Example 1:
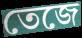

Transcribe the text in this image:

তেজে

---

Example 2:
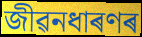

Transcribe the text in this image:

জীৱনধাৰণৰ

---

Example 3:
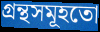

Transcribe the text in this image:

গ্ৰন্থসমূহতো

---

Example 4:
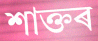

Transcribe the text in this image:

শাক্তৰ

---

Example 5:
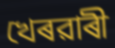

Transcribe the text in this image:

খেৰৱাৰী